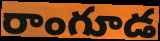
రాంగూడ